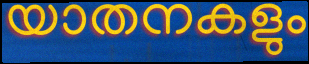
യാതനകളും